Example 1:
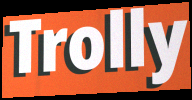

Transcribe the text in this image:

Trolly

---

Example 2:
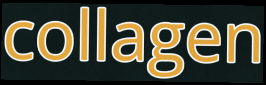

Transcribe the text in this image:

collagen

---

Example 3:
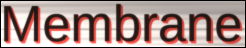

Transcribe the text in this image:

Membrane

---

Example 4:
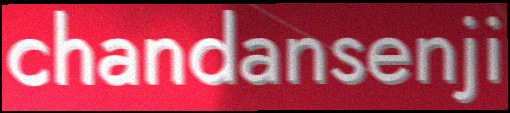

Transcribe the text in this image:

chandansenji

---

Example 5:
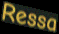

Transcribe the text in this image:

Ressa